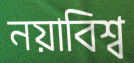
নয়াবিশ্ব